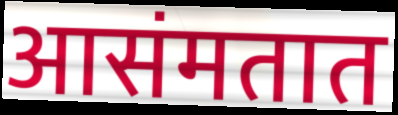
आसंमतात